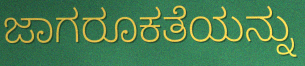
ಜಾಗರೂಕತೆಯನ್ನು